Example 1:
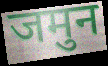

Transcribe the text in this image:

जमुन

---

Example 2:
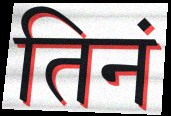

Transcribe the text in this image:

तिनं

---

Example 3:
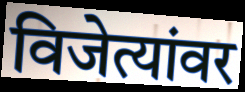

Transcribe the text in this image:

विजेत्यांवर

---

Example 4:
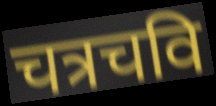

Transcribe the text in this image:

चत्रचवि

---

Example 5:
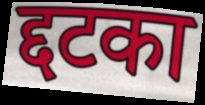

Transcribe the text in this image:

द्दटका